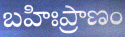
బహిఃప్రాణం